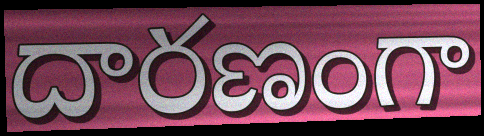
దారణంగా